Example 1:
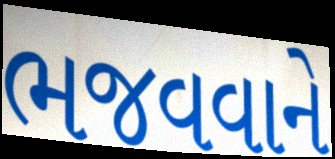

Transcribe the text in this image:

ભજવવાને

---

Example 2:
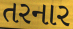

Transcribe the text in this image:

તરનાર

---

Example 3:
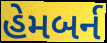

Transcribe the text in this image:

હેમબર્ન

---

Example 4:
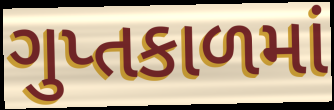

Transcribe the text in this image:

ગુપ્તકાળમાં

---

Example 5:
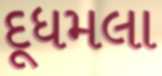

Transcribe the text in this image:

દૂધમલા